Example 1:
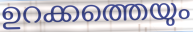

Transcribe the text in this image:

ഉറക്കത്തെയും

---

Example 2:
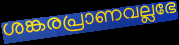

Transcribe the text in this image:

ശങ്കരപ്രാണവല്ലഭേ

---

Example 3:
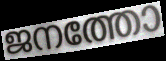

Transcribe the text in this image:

ജനത്തോ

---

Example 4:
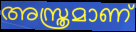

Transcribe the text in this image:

അസ്ത്രമാണ്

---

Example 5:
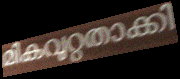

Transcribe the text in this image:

മികവുറ്റതാക്കി